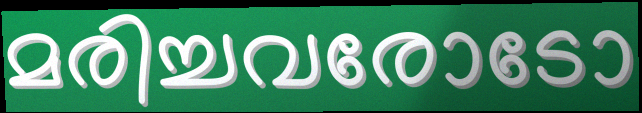
മരിച്ചവരോടോ